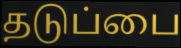
தடுப்பை